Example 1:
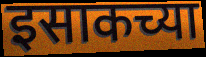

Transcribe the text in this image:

इसाकच्या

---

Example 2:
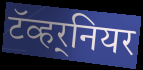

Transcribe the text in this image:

टॅव्हर्नियर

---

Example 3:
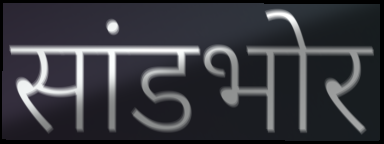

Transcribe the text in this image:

सांडभोर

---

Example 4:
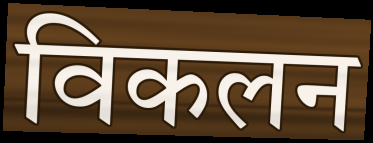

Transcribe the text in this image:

विकलन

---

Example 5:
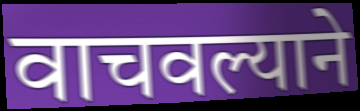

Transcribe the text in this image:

वाचवल्याने